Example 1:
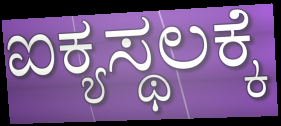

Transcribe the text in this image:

ಐಕ್ಯಸ್ಥಲಕ್ಕೆ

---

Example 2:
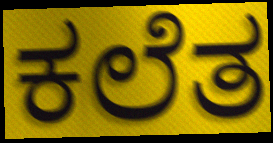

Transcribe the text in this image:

ಕಲೆತ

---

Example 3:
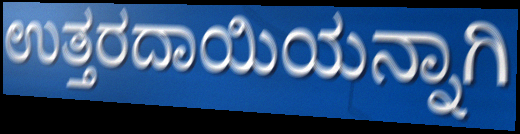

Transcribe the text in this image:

ಉತ್ತರದಾಯಿಯನ್ನಾಗಿ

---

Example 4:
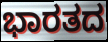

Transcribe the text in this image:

ಭಾರತದ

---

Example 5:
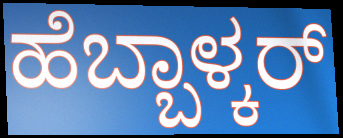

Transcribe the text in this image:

ಹೆಬ್ಬಾಳ್ಕರ್